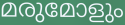
മരുമോളും